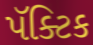
પૅક્ટિક